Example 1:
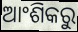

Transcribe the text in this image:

ଆଂଶିକରୁ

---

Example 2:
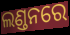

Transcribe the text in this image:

ଲଣ୍ଡନରେ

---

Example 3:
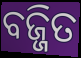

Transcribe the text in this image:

ବଜ୍ଜିତ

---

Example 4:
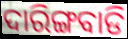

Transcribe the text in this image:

ଦାରିଙ୍ଗବାଡି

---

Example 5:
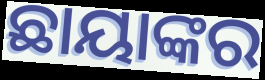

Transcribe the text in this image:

ଛାୟାଙ୍କର